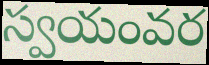
స్వయంవర